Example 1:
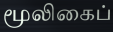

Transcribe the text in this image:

மூலிகைப்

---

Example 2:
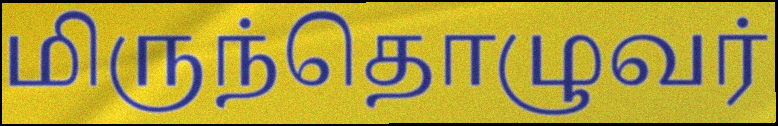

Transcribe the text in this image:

மிருந்தொழுவர்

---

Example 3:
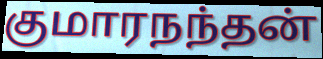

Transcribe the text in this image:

குமாரநந்தன்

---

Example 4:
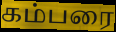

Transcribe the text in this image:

கம்பரை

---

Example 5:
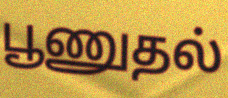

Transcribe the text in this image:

பூணுதல்